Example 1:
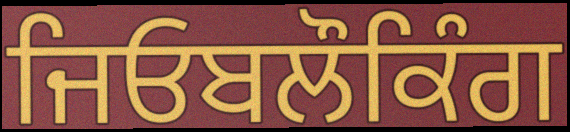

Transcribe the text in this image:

ਜਿਓਬਲੌਕਿੰਗ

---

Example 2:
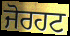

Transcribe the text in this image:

ਜੋਰਹਟ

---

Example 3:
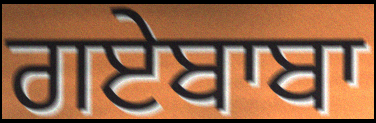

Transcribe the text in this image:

ਗਏਬਾਬਾ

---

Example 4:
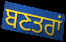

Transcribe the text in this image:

ਬਣਤਰਾਂ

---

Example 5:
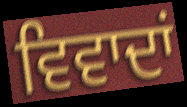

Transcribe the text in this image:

ਵਿਵਾਦਾਂ